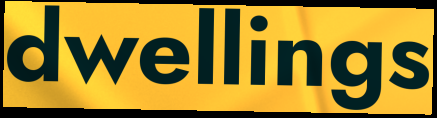
dwellings